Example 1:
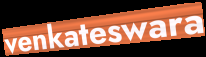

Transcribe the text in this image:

venkateswara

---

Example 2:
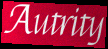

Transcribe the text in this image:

Autrity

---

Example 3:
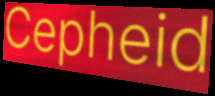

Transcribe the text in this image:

Cepheid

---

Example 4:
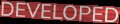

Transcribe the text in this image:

DEVELOPED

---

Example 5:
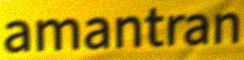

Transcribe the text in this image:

amantran